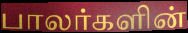
பாலர்களின்